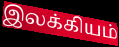
இலக்கியம்